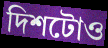
দিশটোও